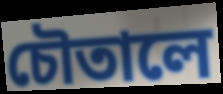
চৌতালে